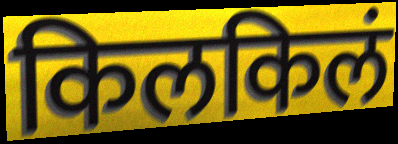
किलकिलं